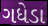
ગધેડા